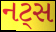
નટ્સ